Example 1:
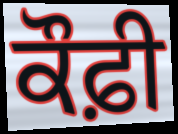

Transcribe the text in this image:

ਕੌਫ਼ੀ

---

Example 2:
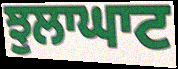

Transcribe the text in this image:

ਝੁਲਾਘਾਟ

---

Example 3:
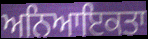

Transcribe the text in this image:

ਅਨਿਆਇਕਤਾ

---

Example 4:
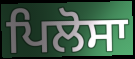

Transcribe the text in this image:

ਪਿਲੋਸਾ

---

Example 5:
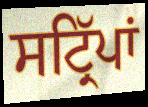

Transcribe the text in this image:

ਸਟ੍ਰਿੱਪਾਂ